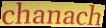
chanach